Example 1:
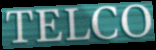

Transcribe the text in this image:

TELCO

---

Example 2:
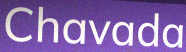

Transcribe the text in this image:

Chavada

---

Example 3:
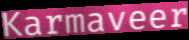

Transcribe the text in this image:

Karmaveer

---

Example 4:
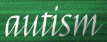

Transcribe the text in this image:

autism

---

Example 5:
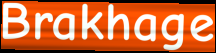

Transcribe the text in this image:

Brakhage